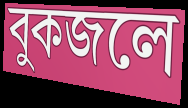
বুকজলে